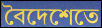
বৈদেশেতে